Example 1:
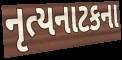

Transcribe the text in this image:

નૃત્યનાટકના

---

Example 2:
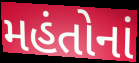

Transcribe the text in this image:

મહંતોનાં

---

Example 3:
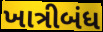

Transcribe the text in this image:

ખાત્રીબંધ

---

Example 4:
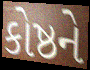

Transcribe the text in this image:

કોષ્ઠને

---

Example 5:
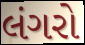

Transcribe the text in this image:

લંગરો